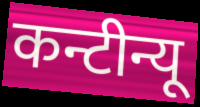
कन्टीन्यू